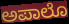
ಅಪಾಲೊ